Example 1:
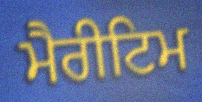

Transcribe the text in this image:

ਮੈਰੀਟਿਮ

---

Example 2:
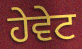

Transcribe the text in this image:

ਹੇਵੇਟ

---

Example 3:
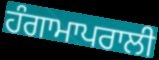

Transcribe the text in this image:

ਹੰਗਾਮਾਪਰਾਲੀ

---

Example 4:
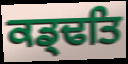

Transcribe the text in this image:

ਕਡ੍ਢਤਿ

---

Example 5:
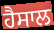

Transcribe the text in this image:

ਹੈਸਾਲ